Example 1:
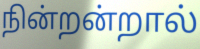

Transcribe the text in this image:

நின்றன்றால்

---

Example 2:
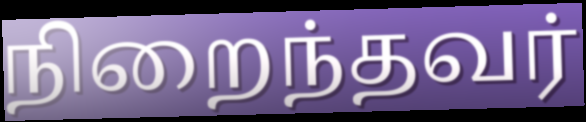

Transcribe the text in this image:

நிறைந்தவர்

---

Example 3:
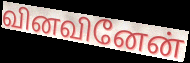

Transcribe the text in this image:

வினவினேன்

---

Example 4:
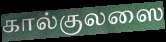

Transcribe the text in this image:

கால்குலஸை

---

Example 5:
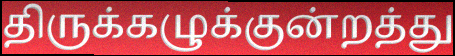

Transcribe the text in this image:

திருக்கழுக்குன்றத்து